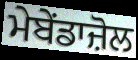
ਮੇਬੇਂਡਾਜ਼ੋਲ